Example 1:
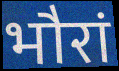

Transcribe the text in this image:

भौरां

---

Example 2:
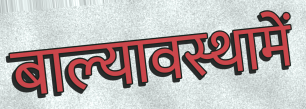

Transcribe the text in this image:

बाल्यावस्थामें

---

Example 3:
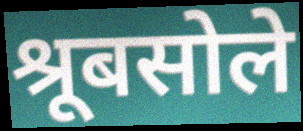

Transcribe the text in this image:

श्रूबसोले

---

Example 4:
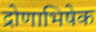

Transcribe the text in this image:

द्रोणाभिषेक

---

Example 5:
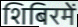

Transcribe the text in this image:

शिबिरमें